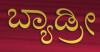
ಬ್ಯಾಡ್ರೀ